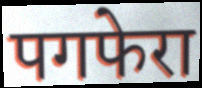
पगफेरा